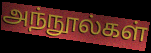
அந்நூல்கள்